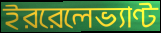
ইররেলেভ্যাণ্ট